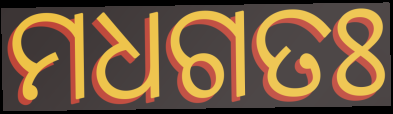
ମଧଗତଃ